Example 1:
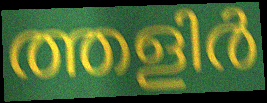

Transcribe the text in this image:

ത്തളിർ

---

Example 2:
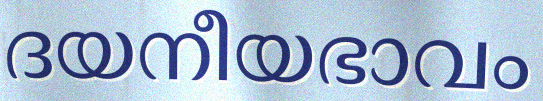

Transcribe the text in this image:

ദയനീയഭാവം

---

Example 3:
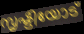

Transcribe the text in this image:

സൃഷ്ടിയോട്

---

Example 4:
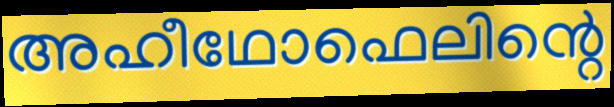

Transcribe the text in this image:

അഹീഥോഫെലിന്റെ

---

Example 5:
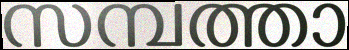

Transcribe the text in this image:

സമ്പത്താ